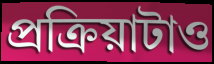
প্রক্রিয়াটাও